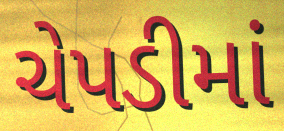
ચેપડીમાં